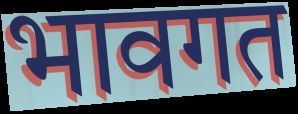
भावगत